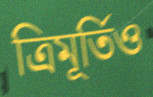
ত্ৰিমূৰ্তিও